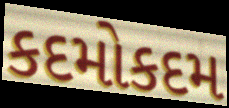
કદમોકદમ